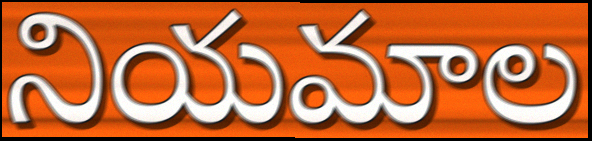
నియమాల